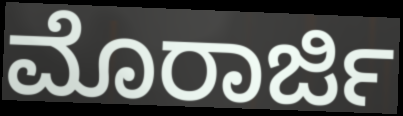
ಮೊರಾರ್ಜಿ